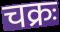
चक्रः